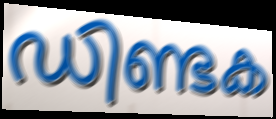
ഡിണ്ടക